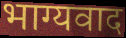
भाग्यवाद